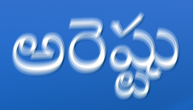
అరెష్టు